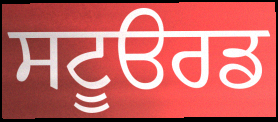
ਸਟੂੳਰਡ